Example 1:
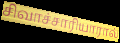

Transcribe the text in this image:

சிவாச்சாரியாரால்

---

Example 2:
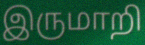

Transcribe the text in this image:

இருமாறி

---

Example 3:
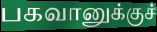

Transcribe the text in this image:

பகவானுக்குச்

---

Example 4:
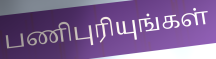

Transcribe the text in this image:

பணிபுரியுங்கள்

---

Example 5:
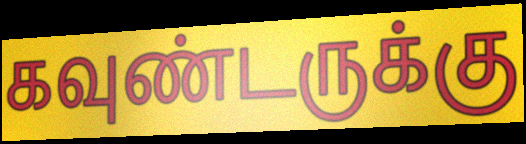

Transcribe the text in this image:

கவுண்டருக்கு